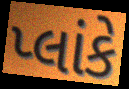
પ્લાંકે